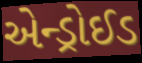
એન્ડ્રોઈડ